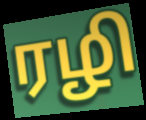
ரழி